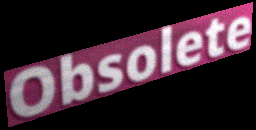
Obsolete